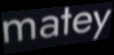
matey